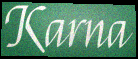
Karna